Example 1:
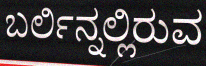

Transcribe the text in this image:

ಬರ್ಲಿನ್ನಲ್ಲಿರುವ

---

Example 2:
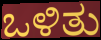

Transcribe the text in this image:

ಒಳಿತು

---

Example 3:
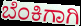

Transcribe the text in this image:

ಬೆಂಕಿಗಾಗಿ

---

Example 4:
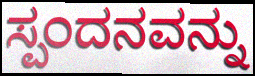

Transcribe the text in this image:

ಸ್ಪಂದನವನ್ನು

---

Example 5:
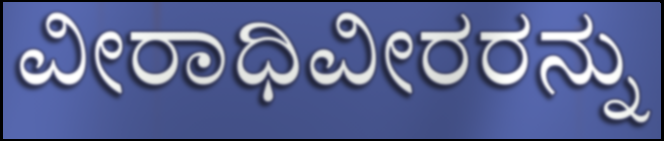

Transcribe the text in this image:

ವೀರಾಧಿವೀರರನ್ನು